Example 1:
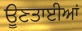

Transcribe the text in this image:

ਊਣਤਾਈਆਂ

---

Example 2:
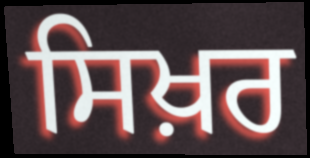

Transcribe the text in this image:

ਸਿਖ਼ਰ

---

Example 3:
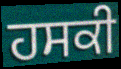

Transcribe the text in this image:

ਹਸਕੀ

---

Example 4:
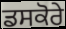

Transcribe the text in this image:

ਡਸਕੋਰੇ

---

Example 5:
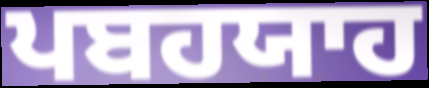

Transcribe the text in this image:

ਪਬਹਯਾਹ